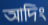
আদিং